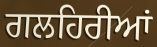
ਗਲਹਿਰੀਆਂ